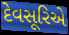
દેવસૂરિએ